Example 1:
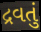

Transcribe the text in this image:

દ્રવતું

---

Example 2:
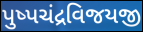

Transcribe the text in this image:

પુષ્પચંદ્રવિજયજી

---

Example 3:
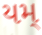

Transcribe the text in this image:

યમ્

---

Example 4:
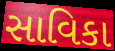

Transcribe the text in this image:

સાવિકા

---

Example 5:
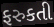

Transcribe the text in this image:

ફરુકતી